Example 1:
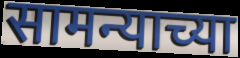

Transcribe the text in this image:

सामन्याच्या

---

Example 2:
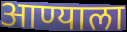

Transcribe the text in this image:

आण्याला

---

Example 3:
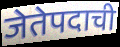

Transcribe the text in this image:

जेतेपदाची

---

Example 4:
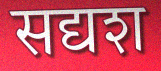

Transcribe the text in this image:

सद्यश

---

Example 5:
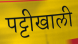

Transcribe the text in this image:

पट्टीखाली